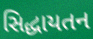
સિદ્ધાયતન